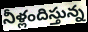
నీళ్లందిస్తున్న